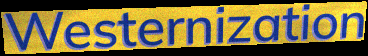
Westernization